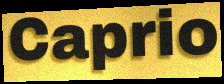
Caprio